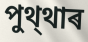
পুথ্থাৰ